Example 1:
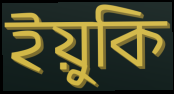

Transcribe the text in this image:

ইয়ুকি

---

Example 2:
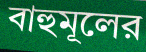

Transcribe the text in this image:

বাহুমূলের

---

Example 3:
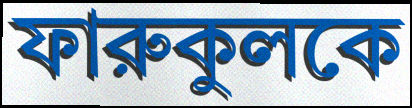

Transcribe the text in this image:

ফারুকুলকে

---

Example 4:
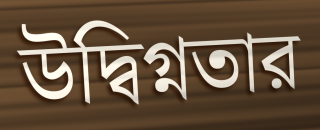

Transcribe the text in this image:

উদ্বিগ্নতার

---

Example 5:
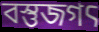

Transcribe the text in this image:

বস্তুজগৎ